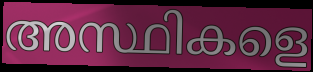
അസ്ഥികളെ